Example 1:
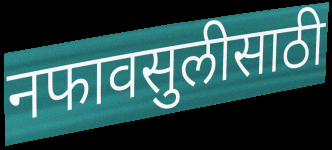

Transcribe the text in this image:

नफावसुलीसाठी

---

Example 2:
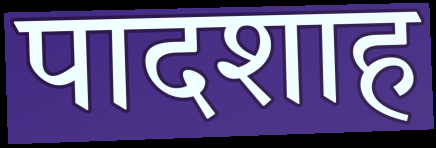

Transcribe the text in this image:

पादशाह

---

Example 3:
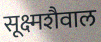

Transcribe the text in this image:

सूक्ष्मशैवाल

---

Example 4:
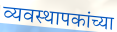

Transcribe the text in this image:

व्यवस्थापकांच्या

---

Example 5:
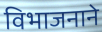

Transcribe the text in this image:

विभाजनाने